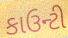
કાઉન્ટી